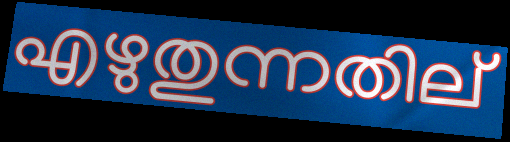
എഴുതുന്നതില്